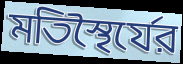
মতিস্থৈর্যের